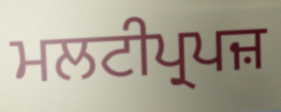
ਮਲਟੀਪ੍ਰਪਜ਼